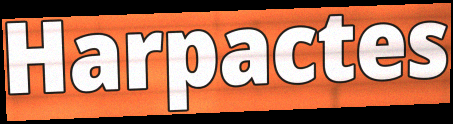
Harpactes